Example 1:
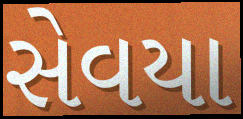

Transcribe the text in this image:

સેવયા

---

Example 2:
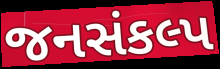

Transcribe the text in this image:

જનસંકલ્પ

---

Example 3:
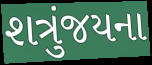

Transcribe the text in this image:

શત્રુંજયના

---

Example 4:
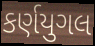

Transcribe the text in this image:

કર્ણયુગલ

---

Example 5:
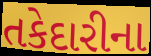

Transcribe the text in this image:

તકેદારીના